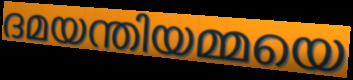
ദമയന്തിയമ്മയെ